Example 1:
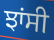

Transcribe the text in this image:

ਝਾਂਸੀ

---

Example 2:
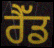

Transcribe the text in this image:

ਰੈੱਡ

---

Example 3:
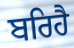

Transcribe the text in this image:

ਬਰਿਹੈ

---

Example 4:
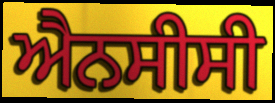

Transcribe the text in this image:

ਐਨਸੀਸੀ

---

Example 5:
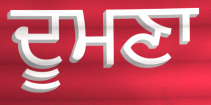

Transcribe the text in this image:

ਦੂਮਣਾ